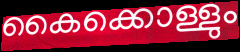
കൈക്കൊള്ളും